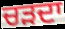
ਚੜਦਾ